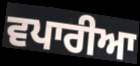
ਵਪਾਰੀਆ